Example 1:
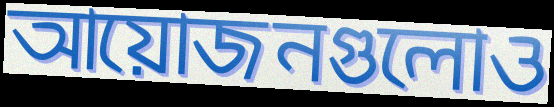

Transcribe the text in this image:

আয়োজনগুলোও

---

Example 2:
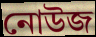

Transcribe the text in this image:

নোউজ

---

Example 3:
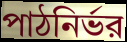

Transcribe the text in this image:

পাঠনির্ভর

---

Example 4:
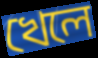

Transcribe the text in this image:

খেলে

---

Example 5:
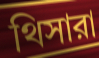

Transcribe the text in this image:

থিসারা